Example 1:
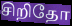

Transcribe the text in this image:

சிறிதோ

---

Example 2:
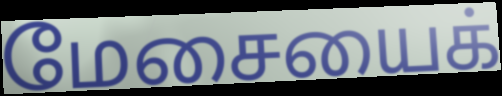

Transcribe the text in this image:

மேசையைக்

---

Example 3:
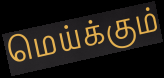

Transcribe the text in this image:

மெய்க்கும்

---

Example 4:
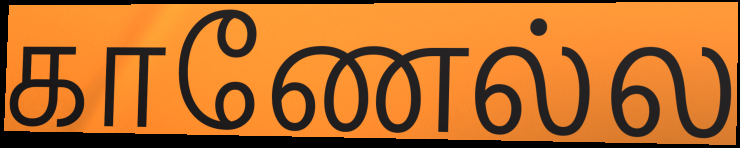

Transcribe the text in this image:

காணேல்ல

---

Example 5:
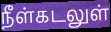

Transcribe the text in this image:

நீள்கடலுள்